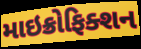
માઇક્રોફિક્શન